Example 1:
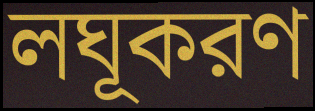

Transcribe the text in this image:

লঘূকরণ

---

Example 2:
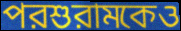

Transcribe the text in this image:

পরশুরামকেও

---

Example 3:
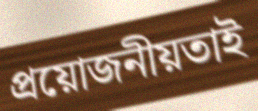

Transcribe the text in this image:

প্রয়োজনীয়তাই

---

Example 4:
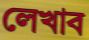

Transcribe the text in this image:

লেখাব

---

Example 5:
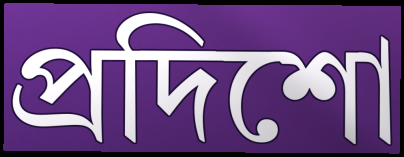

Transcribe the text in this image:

প্রদিশো